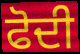
ਫੋਦੀ